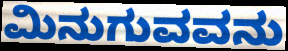
ಮಿನುಗುವವನು